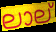
ലാല്